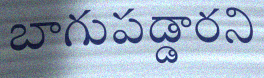
బాగుపడ్డారని